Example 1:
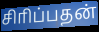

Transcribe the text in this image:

சிரிப்பதன்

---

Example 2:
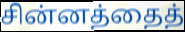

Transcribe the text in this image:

சின்னத்தைத்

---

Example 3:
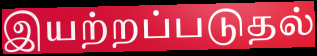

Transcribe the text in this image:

இயற்றப்படுதல்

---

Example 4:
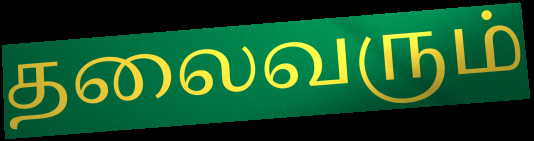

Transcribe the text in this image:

தலைவரும்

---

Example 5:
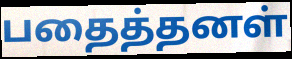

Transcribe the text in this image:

பதைத்தனள்